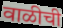
वाळीची